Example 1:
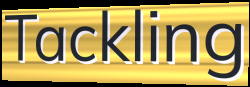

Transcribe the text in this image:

Tackling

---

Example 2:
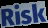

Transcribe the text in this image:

Risk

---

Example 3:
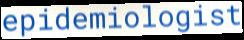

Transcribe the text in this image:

epidemiologist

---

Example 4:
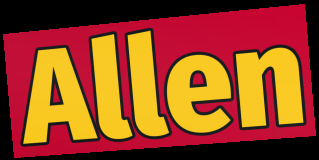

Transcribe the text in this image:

Allen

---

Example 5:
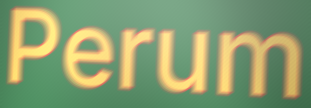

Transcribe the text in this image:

Perum